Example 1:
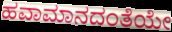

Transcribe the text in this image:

ಹವಾಮಾನದಂತೆಯೇ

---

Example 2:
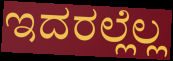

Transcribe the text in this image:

ಇದರಲ್ಲೆಲ್ಲ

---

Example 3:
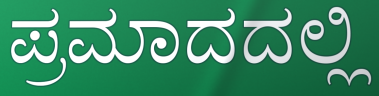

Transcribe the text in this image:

ಪ್ರಮಾದದಲ್ಲಿ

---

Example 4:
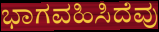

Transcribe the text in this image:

ಭಾಗವಹಿಸಿದೆವು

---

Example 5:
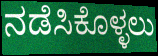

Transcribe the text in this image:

ನಡೆಸಿಕೊಳ್ಳಲು